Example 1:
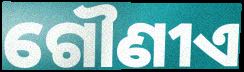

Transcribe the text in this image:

ଗୌଣୀଏ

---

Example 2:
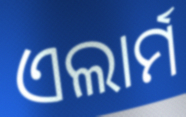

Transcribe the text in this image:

ଏଲାର୍ମ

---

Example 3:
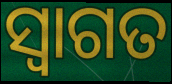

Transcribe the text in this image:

ସ୍ୱାଗତ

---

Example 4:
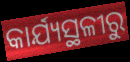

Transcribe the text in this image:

କାର୍ଯ୍ୟସ୍ଥଳୀରୁ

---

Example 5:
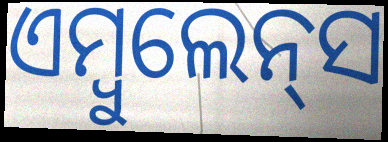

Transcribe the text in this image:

ଏମ୍ବୁଲେନ୍‌ସ